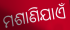
ମଶାଣିଯାଏଁ